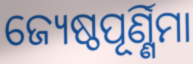
ଜ୍ୟେଷ୍ଠପୂର୍ଣ୍ଣିମା